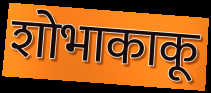
शोभाकाकू